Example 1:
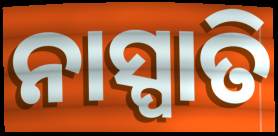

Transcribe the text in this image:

ନାସ୍ପାତି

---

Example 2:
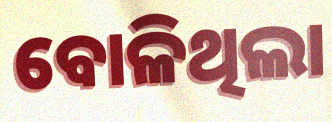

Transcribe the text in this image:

ବୋଳିଥିଲା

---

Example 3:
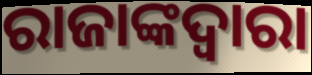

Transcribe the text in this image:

ରାଜାଙ୍କଦ୍ଵାରା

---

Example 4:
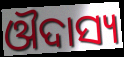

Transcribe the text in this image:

ଔଦାସ୍ୟ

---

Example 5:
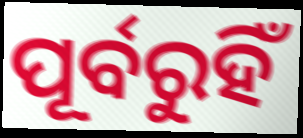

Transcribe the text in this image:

ପୂର୍ବରୁହିଁ